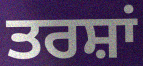
ਤਰਸ਼ਾਂ